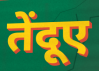
तेंदूए